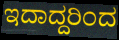
ಇದಾದ್ದರಿಂದ